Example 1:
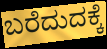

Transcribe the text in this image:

ಬರೆದುದಕ್ಕೆ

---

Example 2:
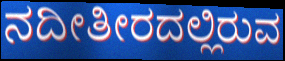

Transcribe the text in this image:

ನದೀತೀರದಲ್ಲಿರುವ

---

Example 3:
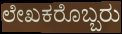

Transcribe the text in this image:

ಲೇಖಕರೊಬ್ಬರು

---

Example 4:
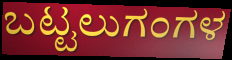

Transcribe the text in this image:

ಬಟ್ಟಲುಗಂಗಳ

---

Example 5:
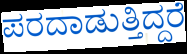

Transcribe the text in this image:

ಪರದಾಡುತ್ತಿದ್ದರೆ